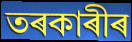
তৰকাৰীৰ